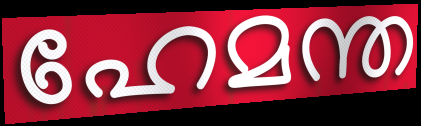
ഹേമന്ത